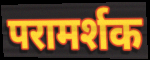
परामर्शक